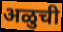
अळुची